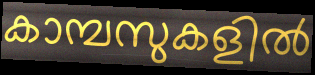
കാമ്പസുകളിൽ